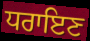
ਧਰਾਇਣ